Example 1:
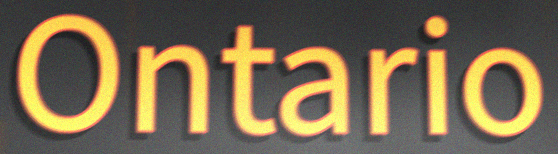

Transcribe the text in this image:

Ontario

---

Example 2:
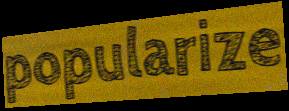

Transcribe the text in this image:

popularize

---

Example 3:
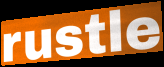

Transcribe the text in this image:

rustle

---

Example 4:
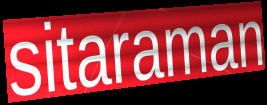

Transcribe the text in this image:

sitaraman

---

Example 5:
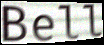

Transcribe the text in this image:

Bell